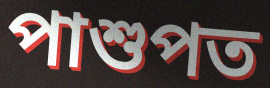
পাশুপত